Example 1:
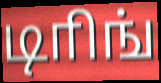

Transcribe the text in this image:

டிரிங்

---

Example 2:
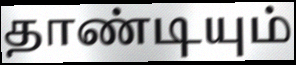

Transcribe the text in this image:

தாண்டியும்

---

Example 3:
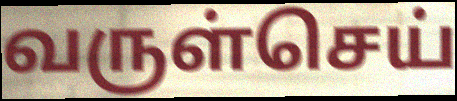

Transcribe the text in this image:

வருள்செய்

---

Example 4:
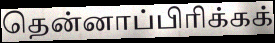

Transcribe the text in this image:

தென்னாப்பிரிக்கக்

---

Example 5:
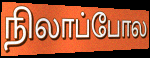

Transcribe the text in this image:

நிலாப்போல